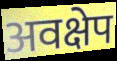
अवक्षेप